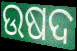
ଉଷଦ